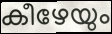
കീഴേയും